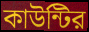
কাউন্টির